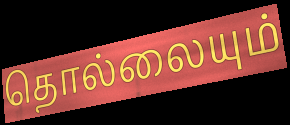
தொல்லையும்